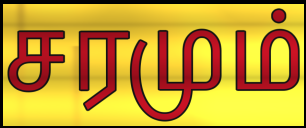
சரமும்